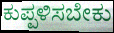
ಕುಪ್ಪಳಿಸಬೇಕು